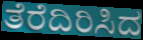
ತೆರೆದಿರಿಸಿದ